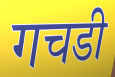
गचडी